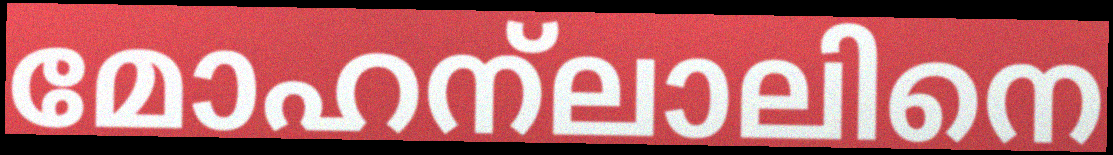
മോഹന്ലാലിനെ